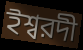
ইশ্বরদী